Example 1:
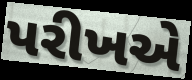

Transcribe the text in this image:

પરીખએ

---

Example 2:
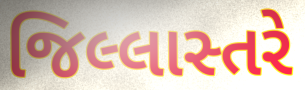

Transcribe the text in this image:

જિલ્લાસ્તરે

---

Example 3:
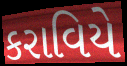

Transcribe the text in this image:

કરાવિયે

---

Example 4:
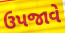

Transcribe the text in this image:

ઉપજાવે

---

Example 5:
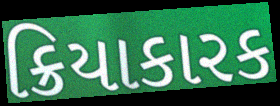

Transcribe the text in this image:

ક્રિયાકારક